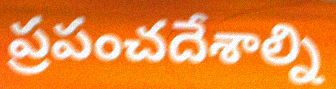
ప్రపంచదేశాల్ని